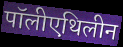
पॉलीएथिलीन